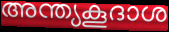
അന്ത്യകൂദാശ